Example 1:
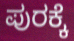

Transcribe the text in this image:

ಪುರಕ್ಕೆ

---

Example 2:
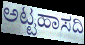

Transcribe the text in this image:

ಅಟ್ಟಹಾಸದಿ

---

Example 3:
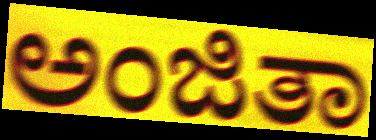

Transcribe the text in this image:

ಅಂಜಿತಾ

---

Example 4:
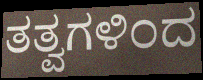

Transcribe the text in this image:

ತತ್ವಗಳಿಂದ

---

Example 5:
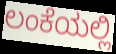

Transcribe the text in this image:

ಲಂಕೆಯಲ್ಲಿ